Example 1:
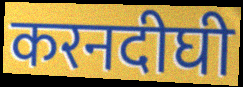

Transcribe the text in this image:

करनदीघी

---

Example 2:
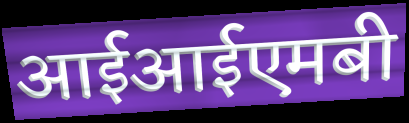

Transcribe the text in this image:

आईआईएमबी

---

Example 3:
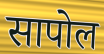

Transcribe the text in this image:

सापोल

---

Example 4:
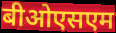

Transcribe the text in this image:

बीओएसएम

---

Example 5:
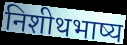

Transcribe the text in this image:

निशीथभाष्य